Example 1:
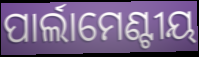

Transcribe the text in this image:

ପାର୍ଲାମେଣ୍ଟୀୟ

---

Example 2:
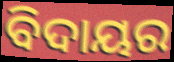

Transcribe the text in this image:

ବିଦାୟର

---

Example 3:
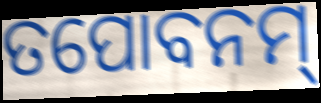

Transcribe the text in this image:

ତପୋବନମ୍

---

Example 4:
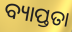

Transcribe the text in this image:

ବ୍ୟାପ୍ତତା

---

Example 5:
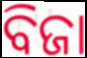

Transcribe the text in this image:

ବିଜା